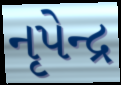
નૃપેન્દ્ર